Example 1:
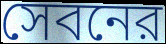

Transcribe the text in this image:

সেবনের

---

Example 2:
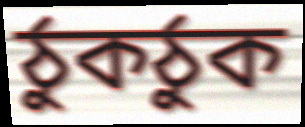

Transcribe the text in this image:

ঠুকঠুক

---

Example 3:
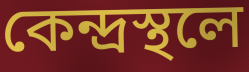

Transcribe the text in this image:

কেন্দ্রস্থলে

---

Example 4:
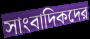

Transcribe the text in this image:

সাংবাদিকদের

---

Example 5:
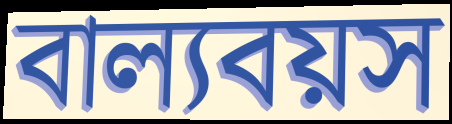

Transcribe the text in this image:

বাল্যবয়স